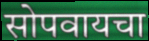
सोपवायचा